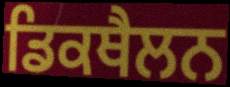
ਡਿਕਥੈਲਨ